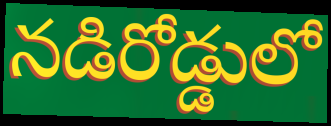
నడిరోడ్డులో